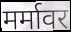
मर्मावर